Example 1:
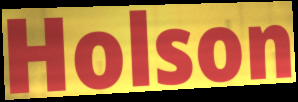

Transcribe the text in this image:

Holson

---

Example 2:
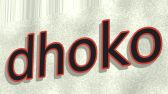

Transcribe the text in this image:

dhoko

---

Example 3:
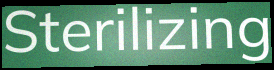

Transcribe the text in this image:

Sterilizing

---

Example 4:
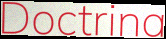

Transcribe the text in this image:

Doctrina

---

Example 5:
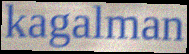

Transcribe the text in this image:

kagalman